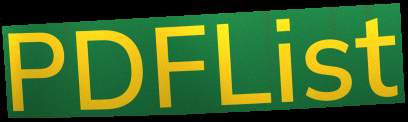
PDFList